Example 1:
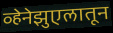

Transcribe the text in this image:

व्हेनेझुएलातून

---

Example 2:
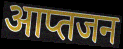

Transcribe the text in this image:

आप्तजन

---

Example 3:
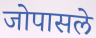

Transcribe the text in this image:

जोपासले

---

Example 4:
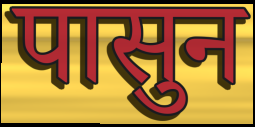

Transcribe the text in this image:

पासुन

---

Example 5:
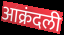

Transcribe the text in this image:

आक्रंदली